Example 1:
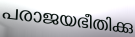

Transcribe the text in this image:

പരാജയഭീതിക്കു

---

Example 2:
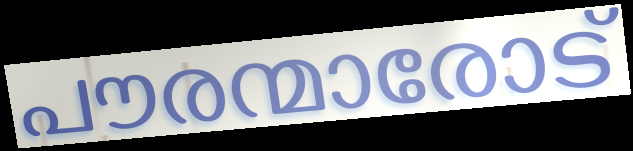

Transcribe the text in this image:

പൗരന്മാരോട്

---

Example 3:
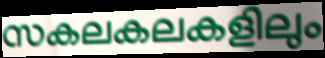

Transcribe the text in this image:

സകലകലകളിലും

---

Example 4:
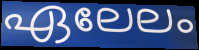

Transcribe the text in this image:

ഏലേലം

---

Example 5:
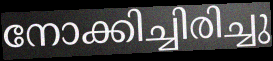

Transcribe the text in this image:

നോക്കിച്ചിരിച്ചു